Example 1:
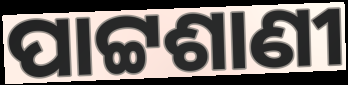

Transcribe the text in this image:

ପାଟ୍ଟଶାଣୀ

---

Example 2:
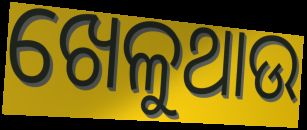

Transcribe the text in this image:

ଖେଳୁଥାଉ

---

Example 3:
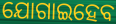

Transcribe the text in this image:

ଯୋଗାଇହେବ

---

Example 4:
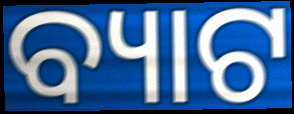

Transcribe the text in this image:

ବ୍ୟାଟ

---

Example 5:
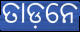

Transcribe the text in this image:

ତାଡ଼ନେ